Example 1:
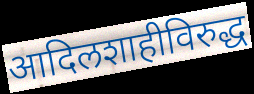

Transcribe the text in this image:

आदिलशाहीविरुद्ध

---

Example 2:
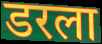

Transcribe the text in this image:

डरला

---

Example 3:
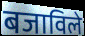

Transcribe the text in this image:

बजाविले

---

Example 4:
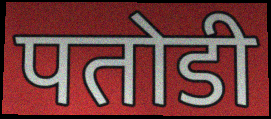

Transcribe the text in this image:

पतोडी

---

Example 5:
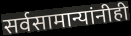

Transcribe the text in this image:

सर्वसामान्यांनीही